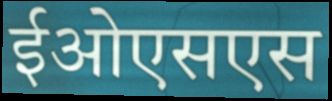
ईओएसएस